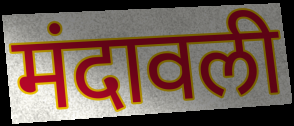
मंदावली